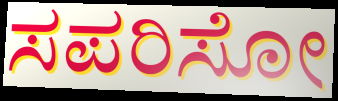
ಸಪರಿಸೋ